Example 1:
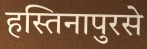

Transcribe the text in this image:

हस्तिनापुरसे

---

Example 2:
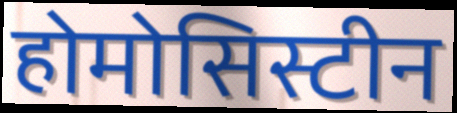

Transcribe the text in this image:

होमोसिस्टीन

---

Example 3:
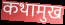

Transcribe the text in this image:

कथामुख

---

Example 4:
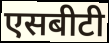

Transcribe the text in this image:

एसबीटी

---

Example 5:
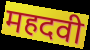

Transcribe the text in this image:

महदवी